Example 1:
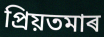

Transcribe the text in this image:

প্ৰিয়তমাৰ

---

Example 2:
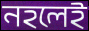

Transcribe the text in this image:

নহলেই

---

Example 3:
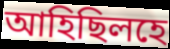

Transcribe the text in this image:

আহিছিলহে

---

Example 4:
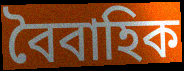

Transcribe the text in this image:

বৈবাহিক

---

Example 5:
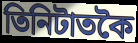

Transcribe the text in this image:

তিনিটাতকৈ